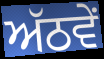
ਅੱਠਵੇਂ